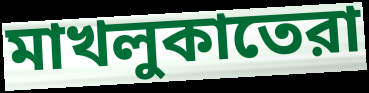
মাখলুকাতেরা